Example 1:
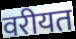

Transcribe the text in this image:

वरीयत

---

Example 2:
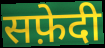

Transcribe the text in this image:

सफ़ेदी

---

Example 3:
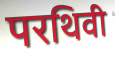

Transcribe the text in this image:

परथिवी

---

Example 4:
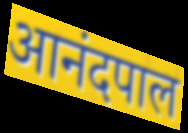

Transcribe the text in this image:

आनंदपाल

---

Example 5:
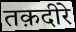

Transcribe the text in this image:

तक़दीरे